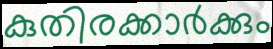
കുതിരക്കാർക്കും